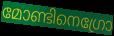
മോണ്ടിനെഗ്രോ